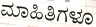
ಮಾಹಿತಿಗಳೂ